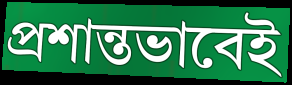
প্রশান্তভাবেই